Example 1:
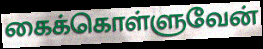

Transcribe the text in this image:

கைக்கொள்ளுவேன்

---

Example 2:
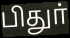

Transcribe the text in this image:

பிதுர்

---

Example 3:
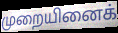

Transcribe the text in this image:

முறையினைக்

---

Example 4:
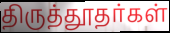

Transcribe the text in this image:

திருத்தூதர்கள்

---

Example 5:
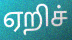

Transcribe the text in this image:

ஏறிச்